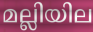
മല്ലിയില